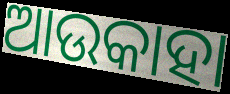
ଆଉକାହା